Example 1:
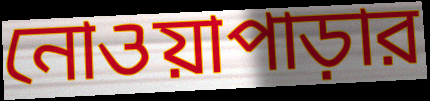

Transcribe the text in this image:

নোওয়াপাড়ার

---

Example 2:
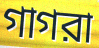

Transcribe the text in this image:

গাগরা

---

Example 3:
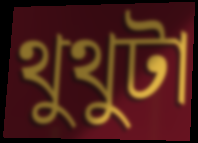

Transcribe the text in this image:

থুথুটা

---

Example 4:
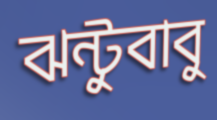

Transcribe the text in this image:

ঝন্টুবাবু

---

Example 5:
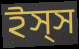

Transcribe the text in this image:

ইস্‌স